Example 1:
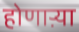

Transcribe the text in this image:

होणाऱ्‍या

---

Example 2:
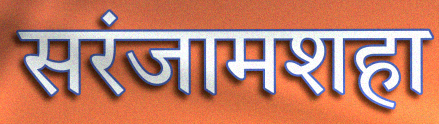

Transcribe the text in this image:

सरंजामशहा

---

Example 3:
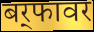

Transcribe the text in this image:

बर्फावर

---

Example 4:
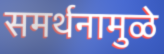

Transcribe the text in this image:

समर्थनामुळे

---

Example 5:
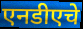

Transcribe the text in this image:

एनडीएचे